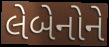
લેબેનોને